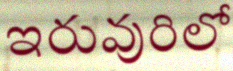
ఇరువురిలో